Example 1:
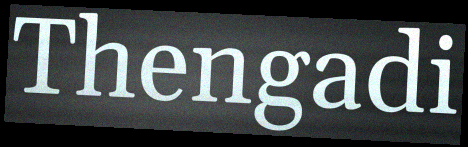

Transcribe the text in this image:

Thengadi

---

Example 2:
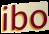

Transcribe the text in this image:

ibo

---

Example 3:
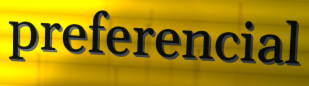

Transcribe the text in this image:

preferencial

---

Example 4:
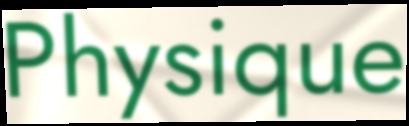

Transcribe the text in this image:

Physique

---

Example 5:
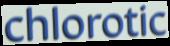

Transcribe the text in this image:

chlorotic